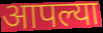
आपल्या